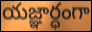
యజ్ఞార్ధంగా